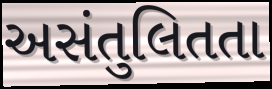
અસંતુલિતતા